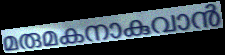
മരുമകനാകുവാൻ